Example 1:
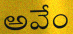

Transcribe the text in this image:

అవేం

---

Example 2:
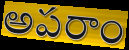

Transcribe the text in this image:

అపరాం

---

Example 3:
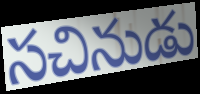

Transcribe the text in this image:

సచినుడు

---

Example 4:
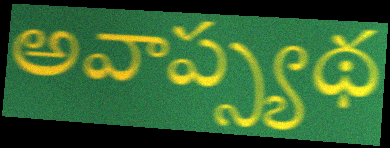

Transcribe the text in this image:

అవాప్స్యథ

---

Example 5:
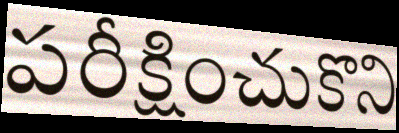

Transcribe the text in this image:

పరీక్షించుకొని